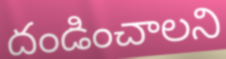
దండించాలని